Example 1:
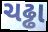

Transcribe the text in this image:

ચઢ્ઢા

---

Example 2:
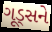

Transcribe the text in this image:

ગૂડ્સને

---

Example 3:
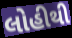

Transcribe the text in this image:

લોહીથી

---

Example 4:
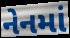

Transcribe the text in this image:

નેનમાં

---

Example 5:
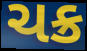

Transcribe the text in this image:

ચક્ર